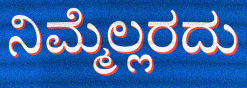
ನಿಮ್ಮೆಲ್ಲರದು